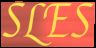
SLES